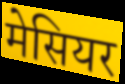
मेसियर